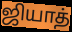
ஜியாத்